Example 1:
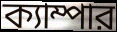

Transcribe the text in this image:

ক্যাম্পার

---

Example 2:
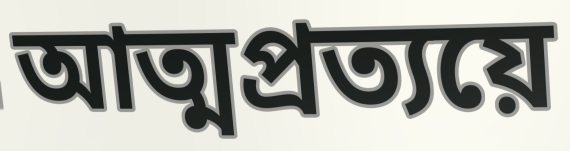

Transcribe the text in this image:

আত্মপ্রত্যয়ে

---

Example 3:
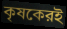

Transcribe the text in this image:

কৃষকেরই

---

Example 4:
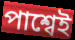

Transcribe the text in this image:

পাশ্বেই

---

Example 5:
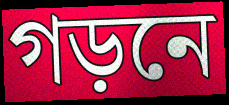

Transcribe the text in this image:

গড়নে